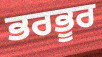
ਭਰਭੂਰ